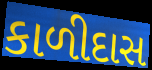
કાળીદાસ